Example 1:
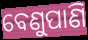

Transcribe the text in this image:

ବେଣୁପାଣି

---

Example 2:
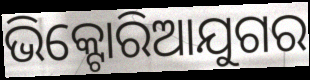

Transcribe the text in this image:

ଭିକ୍ଟୋରିଆଯୁଗର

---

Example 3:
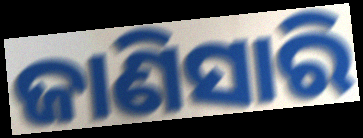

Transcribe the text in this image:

ଜାଣିସାରି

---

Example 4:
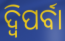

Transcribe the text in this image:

ଦ୍ଵିପର୍ବା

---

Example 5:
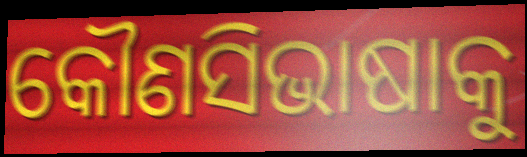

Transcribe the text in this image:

କୌଣସିଭାଷାକୁ